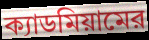
ক্যাডমিয়ামের